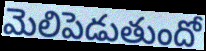
మెలిపెడుతుందో